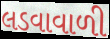
લડવાવાળી